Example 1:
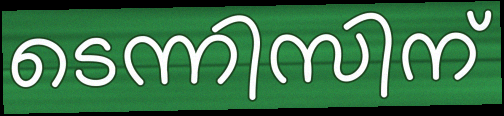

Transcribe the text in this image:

ടെന്നിസിന്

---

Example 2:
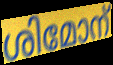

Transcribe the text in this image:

ശിമോന്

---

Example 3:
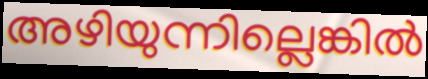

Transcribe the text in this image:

അഴിയുന്നില്ലെങ്കിൽ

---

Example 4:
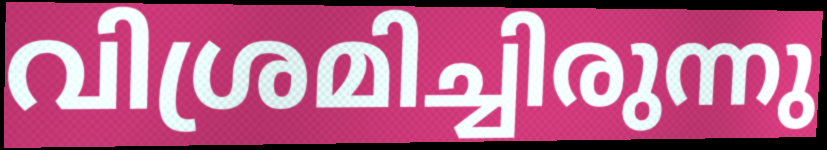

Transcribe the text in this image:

വിശ്രമിച്ചിരുന്നു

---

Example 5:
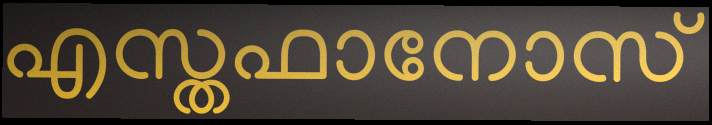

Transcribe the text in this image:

എസ്തഫാനോസ്